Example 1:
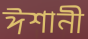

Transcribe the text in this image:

ঈশানী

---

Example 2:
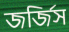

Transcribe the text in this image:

জর্জিস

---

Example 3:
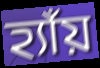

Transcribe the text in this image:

হ্যাঁয়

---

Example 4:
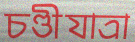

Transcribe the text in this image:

চণ্ডীযাত্রা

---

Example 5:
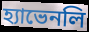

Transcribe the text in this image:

হ্যাভেনলি